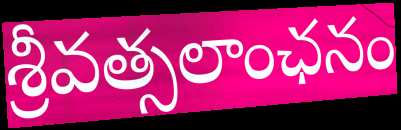
శ్రీవత్సలాంఛనం